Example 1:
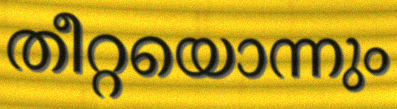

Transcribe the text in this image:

തീറ്റയൊന്നും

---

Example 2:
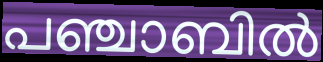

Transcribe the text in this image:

പഞ്ചാബിൽ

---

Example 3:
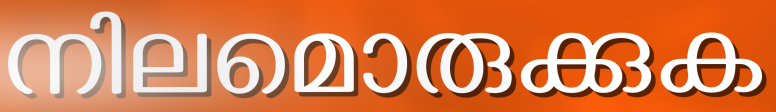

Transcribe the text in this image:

നിലമൊരുക്കുക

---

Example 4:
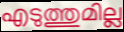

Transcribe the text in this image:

എടുത്തുമില്ല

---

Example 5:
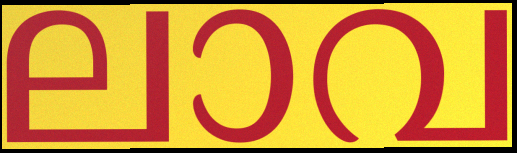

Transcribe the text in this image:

ലാവ